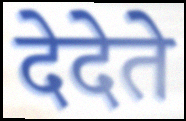
देदेते